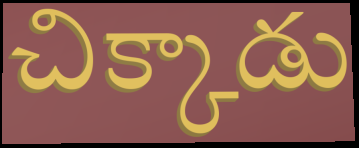
చిక్కాడు